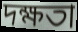
দক্ষতা